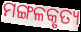
ମଙ୍ଗଳକୃତ୍ୟ